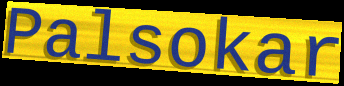
Palsokar